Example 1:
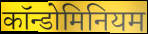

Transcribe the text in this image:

कॉन्डोमिनियम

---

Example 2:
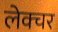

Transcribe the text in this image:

लेक्चर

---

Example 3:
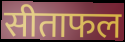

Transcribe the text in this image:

सीताफल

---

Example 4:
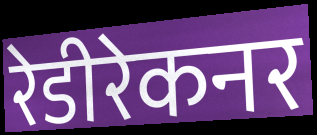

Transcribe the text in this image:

रेडीरेकनर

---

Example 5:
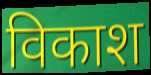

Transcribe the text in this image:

विकाश